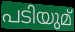
പടിയുമ്